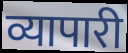
व्यापारी